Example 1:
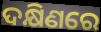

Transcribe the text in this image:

ଦକ୍ଷିଣରେ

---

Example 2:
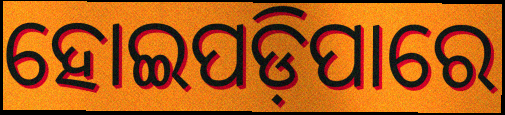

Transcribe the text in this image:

ହୋଇପଡ଼ିପାରେ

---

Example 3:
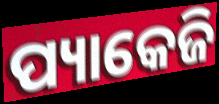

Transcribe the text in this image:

ପ୍ୟାକେଜି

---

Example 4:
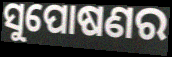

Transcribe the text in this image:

ସୁପୋଷଣର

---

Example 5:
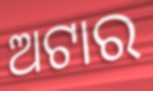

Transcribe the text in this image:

ଅଟାର